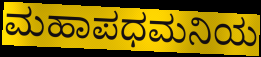
ಮಹಾಪಧಮನಿಯ